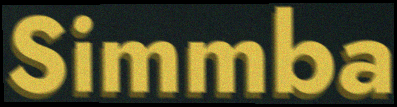
Simmba